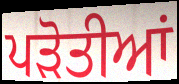
ਪੜੋਤੀਆਂ